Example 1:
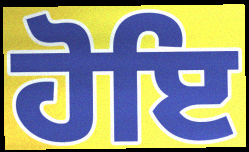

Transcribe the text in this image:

ਹੋਇ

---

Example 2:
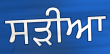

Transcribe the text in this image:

ਸੜੀਆ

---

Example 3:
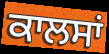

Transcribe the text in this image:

ਕਾਲਸਾਂ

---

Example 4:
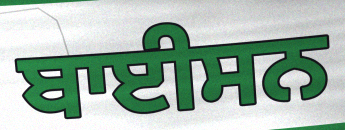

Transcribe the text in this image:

ਬਾਈਸਨ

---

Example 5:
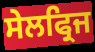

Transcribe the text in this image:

ਸੇਲਫ੍ਰਿਜ